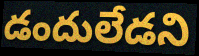
డందులేడని